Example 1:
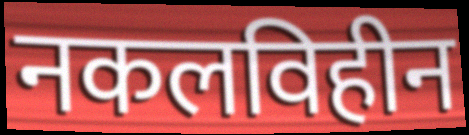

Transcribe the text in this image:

नकलविहीन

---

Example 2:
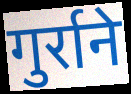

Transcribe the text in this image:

गुर्राने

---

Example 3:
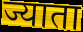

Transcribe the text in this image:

ज्याता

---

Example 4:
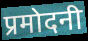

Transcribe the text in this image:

प्रमोदनी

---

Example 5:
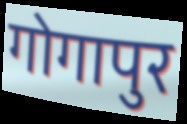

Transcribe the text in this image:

गोगापुर